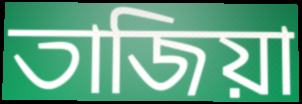
তাজিয়া